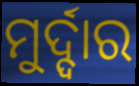
ମୁର୍ଦ୍ଦାର